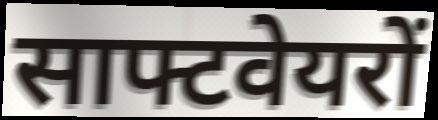
साफ्टवेयरों